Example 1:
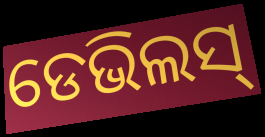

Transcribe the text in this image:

ଡେଭିଲସ୍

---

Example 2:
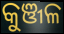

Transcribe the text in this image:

କୁଞ୍ଜଳ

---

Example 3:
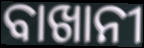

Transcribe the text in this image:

ବାଖାନୀ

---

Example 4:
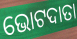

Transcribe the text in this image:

ଭୋଟଦାତା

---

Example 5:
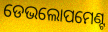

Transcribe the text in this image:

ଡେଭଲୋପମେଣ୍ଟ